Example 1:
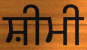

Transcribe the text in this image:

ਸ਼ੀਮੀ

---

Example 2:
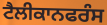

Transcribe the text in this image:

ਟੈਲੀਕਾਨਫਰੰਸ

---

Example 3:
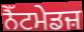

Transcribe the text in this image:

ਨੈੱਟਮੇਡਜ਼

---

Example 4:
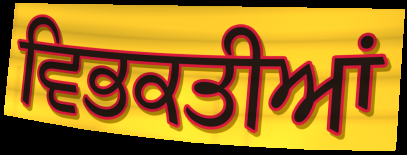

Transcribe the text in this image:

ਵਿਭਕਤੀਆਂ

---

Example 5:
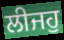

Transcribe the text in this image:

ਲੀਜਹੁ